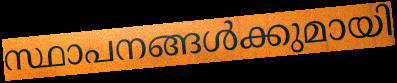
സ്ഥാപനങ്ങൾക്കുമായി